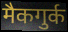
मैकगुर्क